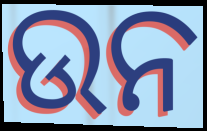
ଉନ